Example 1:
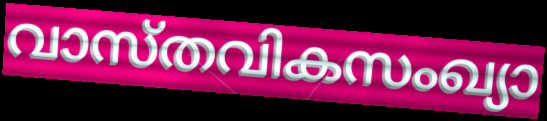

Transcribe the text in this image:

വാസ്തവികസംഖ്യാ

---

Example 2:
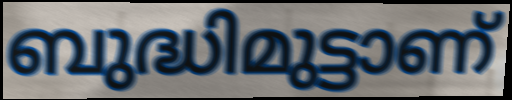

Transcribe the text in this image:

ബുദ്ധിമുട്ടാണ്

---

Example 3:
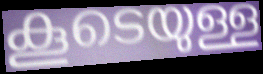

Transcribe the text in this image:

കൂടെയുള്ള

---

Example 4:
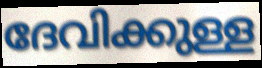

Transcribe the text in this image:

ദേവിക്കുള്ള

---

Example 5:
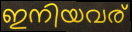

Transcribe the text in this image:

ഇനിയവര്